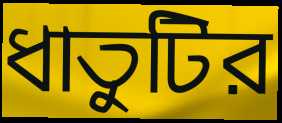
ধাতুটির